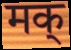
मक्